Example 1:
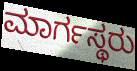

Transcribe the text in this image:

ಮಾರ್ಗಸ್ಥರು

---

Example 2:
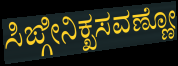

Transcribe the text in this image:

ಸಿಙ್ಗೀನಿಕ್ಖಸವಣ್ಣೋ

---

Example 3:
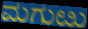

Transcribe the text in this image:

ಮಗುೞು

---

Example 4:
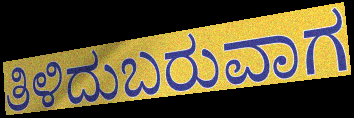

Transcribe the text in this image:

ತಿಳಿದುಬರುವಾಗ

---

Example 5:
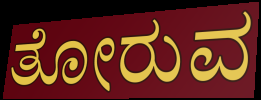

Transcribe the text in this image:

ತೋರುವ